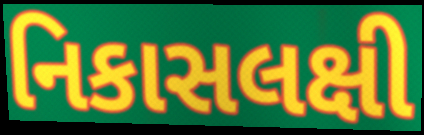
નિકાસલક્ષી